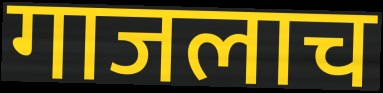
गाजलाच